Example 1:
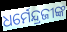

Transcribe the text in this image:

ଧର୍ମେନ୍ଦ୍ରଜୀଙ୍କ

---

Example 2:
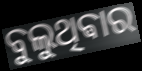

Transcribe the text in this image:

ବୁଲୁଥିଵାର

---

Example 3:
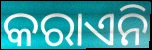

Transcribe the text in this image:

କରାଏନି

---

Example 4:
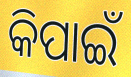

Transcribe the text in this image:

କିପାଇଁ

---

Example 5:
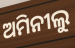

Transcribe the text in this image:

ଅମିନୀଲୁ